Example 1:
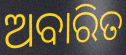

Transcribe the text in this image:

ଅବାରିତ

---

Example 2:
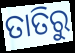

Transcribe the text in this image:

ତାତିରୁ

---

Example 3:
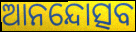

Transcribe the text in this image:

ଆନନ୍ଦୋତ୍ସବ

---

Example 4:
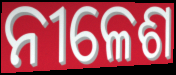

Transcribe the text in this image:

ନୀଳେଶ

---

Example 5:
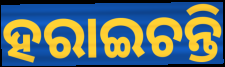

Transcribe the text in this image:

ହରାଇଚନ୍ତି